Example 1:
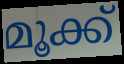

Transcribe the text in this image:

മൂക്ക്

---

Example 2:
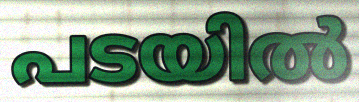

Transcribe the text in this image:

പടയിൽ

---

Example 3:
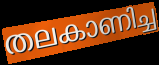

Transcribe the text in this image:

തലകാണിച്ച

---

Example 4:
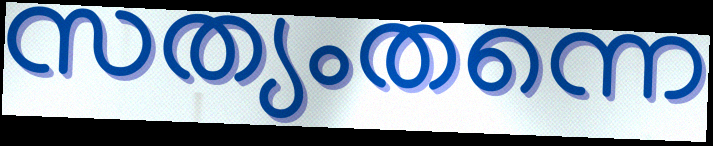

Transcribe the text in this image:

സത്യംതന്നെ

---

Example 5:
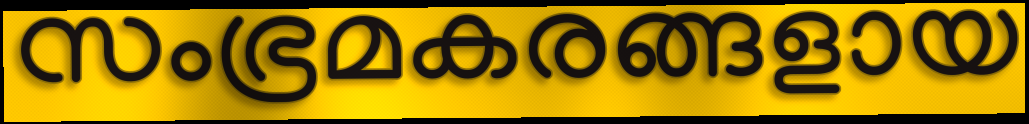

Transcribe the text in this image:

സംഭ്രമകരങ്ങളായ